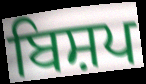
ਬਿਸ਼ਪ